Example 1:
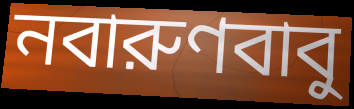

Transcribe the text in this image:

নবারুণবাবু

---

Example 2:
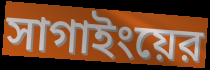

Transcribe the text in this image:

সাগাইংয়ের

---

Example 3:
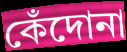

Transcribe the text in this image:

কেঁদোনা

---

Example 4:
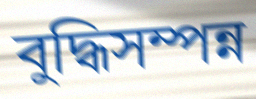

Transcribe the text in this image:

বুদ্ধিসম্পন্ন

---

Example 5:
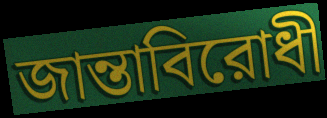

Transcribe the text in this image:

জান্তাবিরোধী